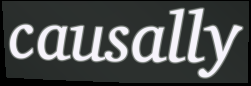
causally